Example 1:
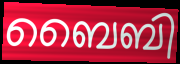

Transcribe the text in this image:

ബൈബി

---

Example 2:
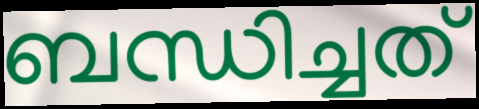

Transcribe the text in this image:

ബന്ധിച്ചത്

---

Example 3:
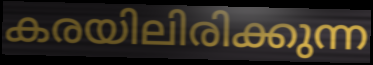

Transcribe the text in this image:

കരയിലിരിക്കുന്ന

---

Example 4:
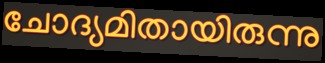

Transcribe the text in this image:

ചോദ്യമിതായിരുന്നു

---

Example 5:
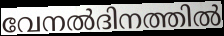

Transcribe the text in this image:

വേനൽദിനത്തിൽ